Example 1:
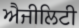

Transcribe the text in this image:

ਐਜੀਲਿਟੀ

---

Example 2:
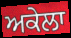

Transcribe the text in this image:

ਅਕੇਲਾ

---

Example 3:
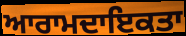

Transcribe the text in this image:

ਆਰਾਮਦਾਇਕਤਾ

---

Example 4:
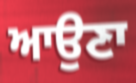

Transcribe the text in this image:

ਆਉਣਾ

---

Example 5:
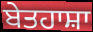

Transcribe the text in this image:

ਬੇਤਹਾਸ਼ਾ